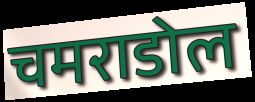
चमराडोल